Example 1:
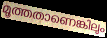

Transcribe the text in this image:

മൂത്തതാണെങ്കിലും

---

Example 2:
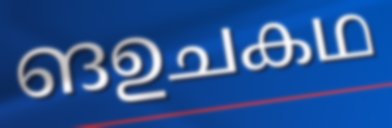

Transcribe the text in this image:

ങഉചകഥ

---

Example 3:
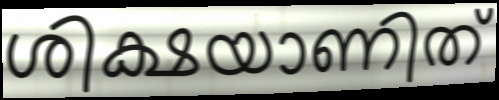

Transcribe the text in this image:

ശിക്ഷയാണിത്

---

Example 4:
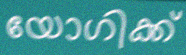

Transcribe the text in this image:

യോഗിക്ക്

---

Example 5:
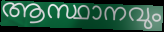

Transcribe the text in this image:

ആസ്ഥാനവും